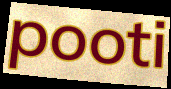
pooti